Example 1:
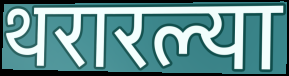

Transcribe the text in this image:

थरारल्या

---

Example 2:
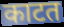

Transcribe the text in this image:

काटत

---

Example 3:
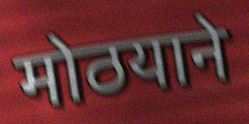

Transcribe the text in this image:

मोठयाने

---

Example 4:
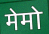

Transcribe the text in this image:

मेमो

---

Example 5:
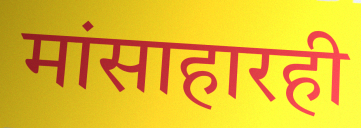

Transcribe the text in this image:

मांसाहारही